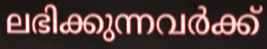
ലഭിക്കുന്നവർക്ക്